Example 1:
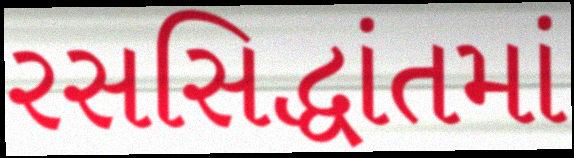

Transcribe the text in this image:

રસસિદ્ધાંતમાં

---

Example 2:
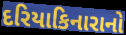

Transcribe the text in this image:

દરિયાકિનારાનો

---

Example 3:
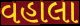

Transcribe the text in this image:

વહાલા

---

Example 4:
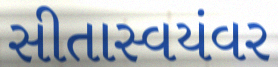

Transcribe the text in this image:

સીતાસ્વયંવર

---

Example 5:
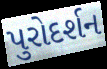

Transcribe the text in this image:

પુરોદર્શન